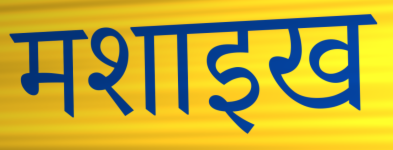
मशाइख